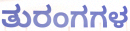
ತುರಂಗಗಳ